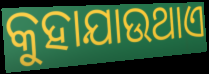
କୁହାଯାଉଥାଏ